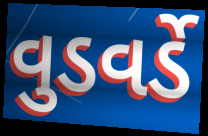
વુડવર્ડે